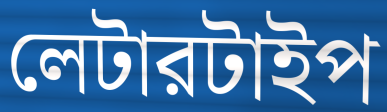
লেটারটাইপ